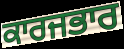
ਕਾਰਜਭਾਰ